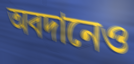
অবদানেও